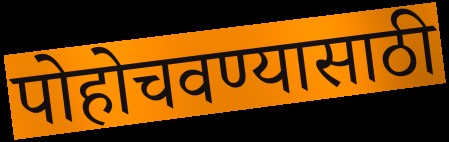
पोहोचवण्यासाठी